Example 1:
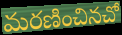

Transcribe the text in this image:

మరణించినచో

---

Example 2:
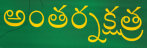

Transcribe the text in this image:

అంతర్నక్షత్ర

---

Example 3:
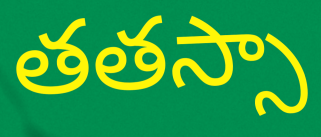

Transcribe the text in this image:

తతస్సా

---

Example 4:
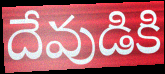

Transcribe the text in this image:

దేవుడికి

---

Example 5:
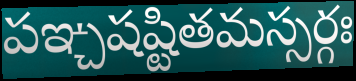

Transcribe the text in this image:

పఞ్చషష్టితమస్సర్గః